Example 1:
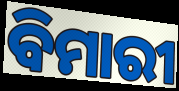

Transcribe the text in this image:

ବିମାରୀ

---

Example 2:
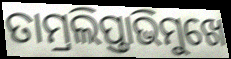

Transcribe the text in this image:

ତାମ୍ରଲିପ୍ତାଭିମୁଖେ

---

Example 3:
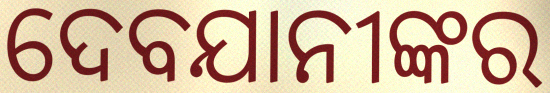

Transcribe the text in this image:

ଦେବଯାନୀଙ୍କର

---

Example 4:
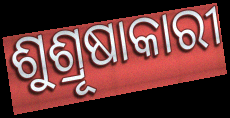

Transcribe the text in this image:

ଶୁଶ୍ରୂଷାକାରୀ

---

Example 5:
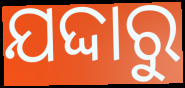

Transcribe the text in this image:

ଯଦ୍ଦାରୁ